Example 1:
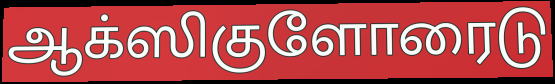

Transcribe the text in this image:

ஆக்ஸிகுளோரைடு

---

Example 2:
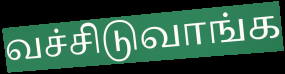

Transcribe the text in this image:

வச்சிடுவாங்க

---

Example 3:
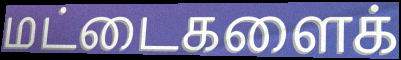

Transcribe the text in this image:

மட்டைகளைக்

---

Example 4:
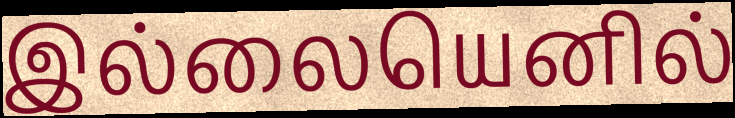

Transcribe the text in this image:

இல்லையெனில்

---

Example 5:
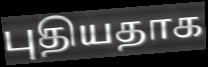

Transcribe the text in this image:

புதியதாக